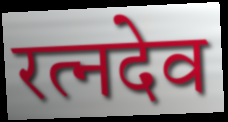
रत्नदेव